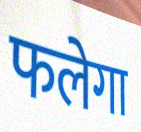
फलेगा